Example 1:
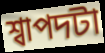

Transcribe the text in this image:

শ্বাপদটা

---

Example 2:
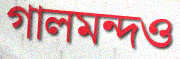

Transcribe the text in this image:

গালমন্দও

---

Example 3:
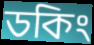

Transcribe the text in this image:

ডকিং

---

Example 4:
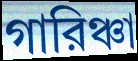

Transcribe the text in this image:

গারিঞ্চা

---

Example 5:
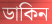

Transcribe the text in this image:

ডাকিন